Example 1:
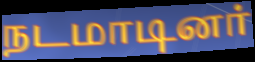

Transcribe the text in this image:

நடமாடினர்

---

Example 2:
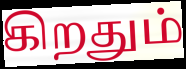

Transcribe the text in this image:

கிறதும்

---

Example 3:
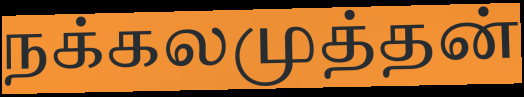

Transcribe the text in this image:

நக்கலமுத்தன்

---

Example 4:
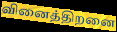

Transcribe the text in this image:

வினைத்திறனை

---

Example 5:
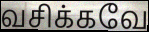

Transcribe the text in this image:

வசிக்கவே